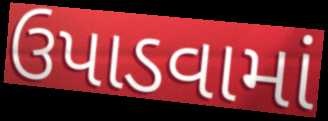
ઉપાડવામાં